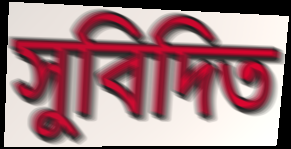
সুবিদিত